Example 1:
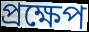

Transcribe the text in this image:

প্ৰক্ষেপ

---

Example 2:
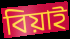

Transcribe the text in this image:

বিয়াই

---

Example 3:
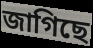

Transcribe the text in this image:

জাগিছে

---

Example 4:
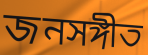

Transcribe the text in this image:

জনসঙ্গীত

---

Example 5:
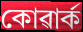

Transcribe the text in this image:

কোৱাৰ্ক